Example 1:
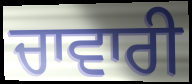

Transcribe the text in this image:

ਚਾਵਾਰੀ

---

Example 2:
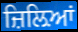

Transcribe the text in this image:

ਜ਼ਿਲ਼ਿਆਂ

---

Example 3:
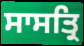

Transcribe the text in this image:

ਸਾਸਤ੍ਰਿ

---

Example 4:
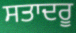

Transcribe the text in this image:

ਸਤਾਦਰੂ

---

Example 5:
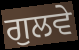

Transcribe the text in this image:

ਗੁਲਵੇ